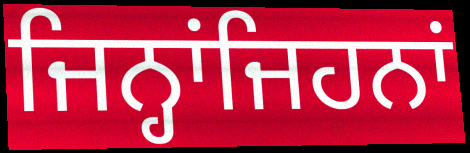
ਜਿਨ੍ਹਾਂਜਿਹਨਾਂ